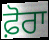
ਫ਼ੋਰਾ